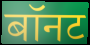
बॉनट